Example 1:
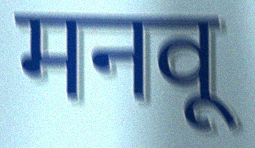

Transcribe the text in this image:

मनवू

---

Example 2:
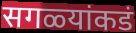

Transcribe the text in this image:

सगळ्यांकडं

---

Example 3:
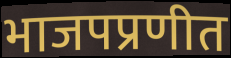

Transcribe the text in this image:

भाजपप्रणीत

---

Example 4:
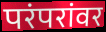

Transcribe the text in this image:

परंपरांवर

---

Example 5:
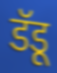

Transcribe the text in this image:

डॅडू